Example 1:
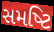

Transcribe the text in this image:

સમષ્‍ટિ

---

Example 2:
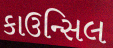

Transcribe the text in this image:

કાઉન્‍સિલ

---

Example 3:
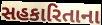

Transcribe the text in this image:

સહકારિતાના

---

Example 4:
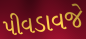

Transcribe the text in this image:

પીવડાવજે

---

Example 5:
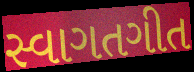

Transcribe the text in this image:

સ્વાગતગીત